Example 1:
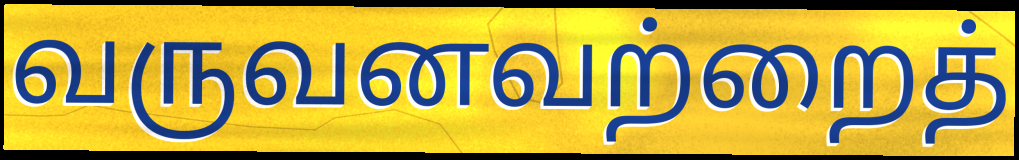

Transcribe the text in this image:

வருவனவற்றைத்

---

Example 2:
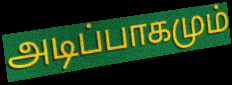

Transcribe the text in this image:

அடிப்பாகமும்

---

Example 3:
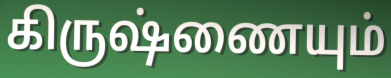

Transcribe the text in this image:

கிருஷ்ணையும்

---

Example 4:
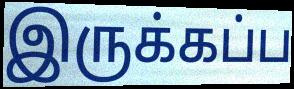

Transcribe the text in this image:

இருக்கப்ப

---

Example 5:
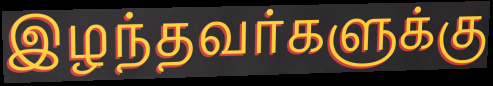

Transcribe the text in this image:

இழந்தவர்களுக்கு